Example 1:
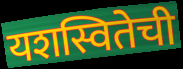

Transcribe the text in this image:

यशस्वितेची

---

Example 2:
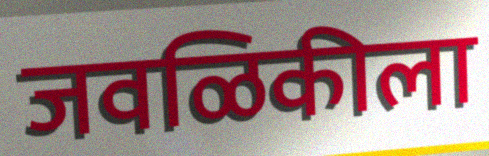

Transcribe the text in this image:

जवळिकीला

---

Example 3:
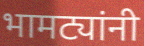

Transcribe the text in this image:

भामट्यांनी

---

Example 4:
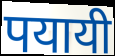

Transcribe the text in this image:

पयायी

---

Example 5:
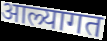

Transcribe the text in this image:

आल्यागत